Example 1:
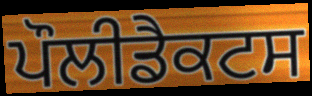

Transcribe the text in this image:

ਪੌਲੀਡੈਕਟਸ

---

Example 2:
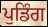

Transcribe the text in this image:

ਪੁਡਿੰਗ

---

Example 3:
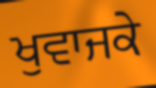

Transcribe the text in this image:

ਖੁਵਾਜਕੇ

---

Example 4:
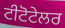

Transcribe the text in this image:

ਟੀਟੋਟੇਲਰ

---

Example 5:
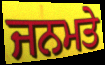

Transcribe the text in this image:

ਜਨਮਤੇ